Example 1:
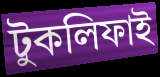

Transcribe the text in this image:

টুকলিফাই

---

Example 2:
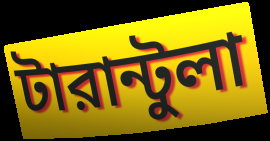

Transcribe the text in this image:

টারান্টুলা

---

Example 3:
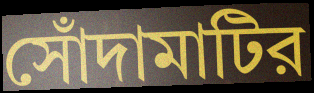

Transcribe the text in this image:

সোঁদামাটির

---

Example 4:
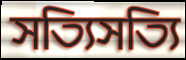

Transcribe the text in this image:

সত্যিসত্যি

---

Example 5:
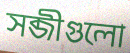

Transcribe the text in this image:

সব্জীগুলো